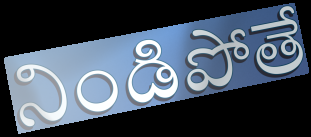
నిండిపోతే